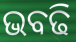
ଭବଢି